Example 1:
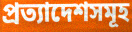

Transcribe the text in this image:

প্রত্যাদেশসমূহ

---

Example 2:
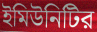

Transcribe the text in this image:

ইমিউনিটির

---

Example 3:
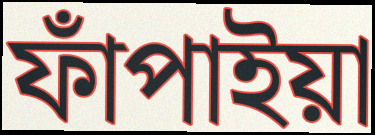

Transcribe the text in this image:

ফাঁপাইয়া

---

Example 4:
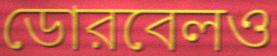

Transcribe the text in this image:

ডোরবেলও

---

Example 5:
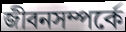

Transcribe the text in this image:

জীবনসম্পর্কে